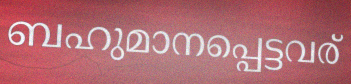
ബഹുമാനപ്പെട്ടവര്